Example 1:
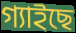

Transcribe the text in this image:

গ্যাইছে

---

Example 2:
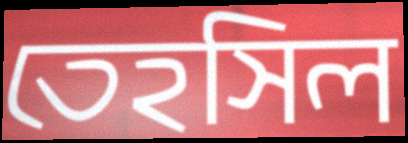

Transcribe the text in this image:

তেহসিল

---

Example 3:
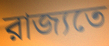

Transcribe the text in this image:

রাজ্যতে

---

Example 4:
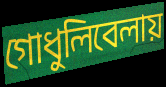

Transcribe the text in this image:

গোধুলিবেলায়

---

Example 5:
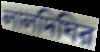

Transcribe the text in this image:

লালদিঘির